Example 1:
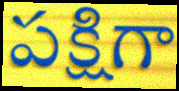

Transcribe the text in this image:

పక్షిగా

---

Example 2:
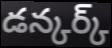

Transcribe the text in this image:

డన్కర్క్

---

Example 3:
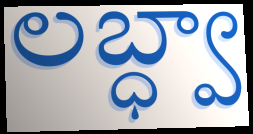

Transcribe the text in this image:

లబ్ధ్వా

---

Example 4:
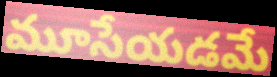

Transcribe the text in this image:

మూసేయడమే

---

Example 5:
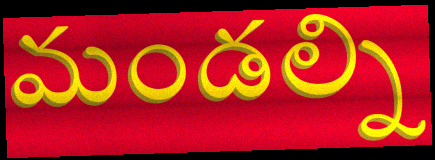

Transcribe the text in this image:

మండల్ని